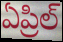
ఏప్రిల్